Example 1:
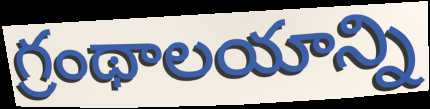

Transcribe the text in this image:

గ్రంథాలయాన్ని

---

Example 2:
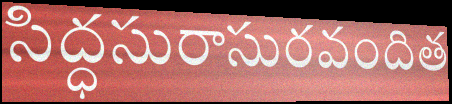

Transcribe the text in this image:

సిద్ధసురాసురవందిత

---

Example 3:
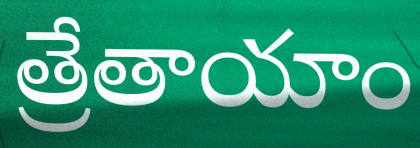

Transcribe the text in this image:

త్రేతాయాం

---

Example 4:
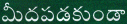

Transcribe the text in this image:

మీదపడకుండా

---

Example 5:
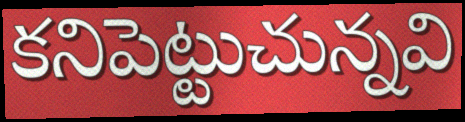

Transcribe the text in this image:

కనిపెట్టుచున్నవి